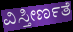
ವಿಸ್ತೀರ್ಣತೆ